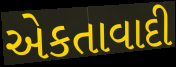
એકતાવાદી